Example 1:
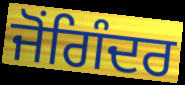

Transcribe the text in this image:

ਜੋਂਗਿੰਦਰ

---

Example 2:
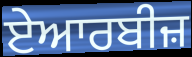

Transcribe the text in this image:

ਏਆਰਬੀਜ਼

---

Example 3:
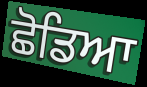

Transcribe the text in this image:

ਛੋਡਿਆ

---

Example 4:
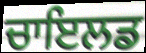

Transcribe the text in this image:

ਚਾਇਲਡ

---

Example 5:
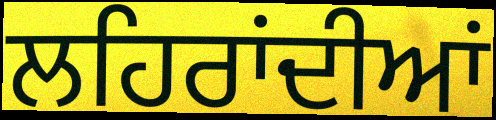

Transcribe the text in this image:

ਲਹਿਰਾਂਦੀਆਂ